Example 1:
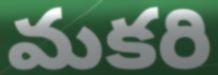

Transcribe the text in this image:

మకరి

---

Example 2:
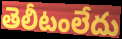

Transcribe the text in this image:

తెలీటంలేదు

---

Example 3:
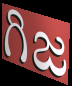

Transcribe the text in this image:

గిజ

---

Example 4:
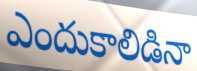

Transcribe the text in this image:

ఎందుకాలిడినా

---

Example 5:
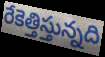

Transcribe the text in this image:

రేకెత్తిస్తున్నది